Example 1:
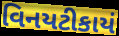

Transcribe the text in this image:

વિનયટીકાયં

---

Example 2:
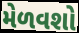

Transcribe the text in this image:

મેળવશો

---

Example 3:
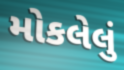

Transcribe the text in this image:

મોકલેલું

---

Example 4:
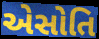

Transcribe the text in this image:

એસોતિ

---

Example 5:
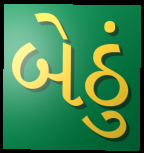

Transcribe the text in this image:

બેઠું